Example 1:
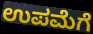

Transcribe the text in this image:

ಉಪಮೆಗೆ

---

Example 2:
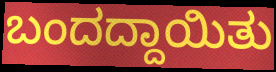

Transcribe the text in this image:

ಬಂದದ್ದಾಯಿತು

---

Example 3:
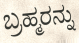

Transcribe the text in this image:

ಬ್ರಹ್ಮರನ್ನು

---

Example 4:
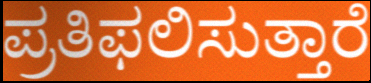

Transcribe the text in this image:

ಪ್ರತಿಫಲಿಸುತ್ತಾರೆ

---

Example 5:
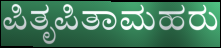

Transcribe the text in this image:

ಪಿತೃಪಿತಾಮಹರು